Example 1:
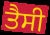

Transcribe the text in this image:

ਤੈਸੀ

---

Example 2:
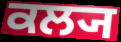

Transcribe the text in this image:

ਕਲ੍ਯ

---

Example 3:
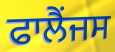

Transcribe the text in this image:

ਫਾਲੈਂਜਸ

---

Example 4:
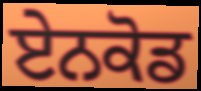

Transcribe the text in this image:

ਏਨਕੋਡ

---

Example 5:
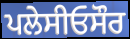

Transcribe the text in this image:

ਪਲੇਸੀਓਸੌਰ